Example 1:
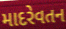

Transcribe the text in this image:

માદરેવતન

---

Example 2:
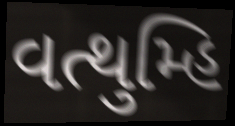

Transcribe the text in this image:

વત્થુમ્હિ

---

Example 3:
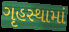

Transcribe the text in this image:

ગૃહસ્થામાં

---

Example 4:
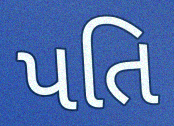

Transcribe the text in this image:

પતિ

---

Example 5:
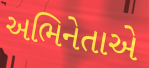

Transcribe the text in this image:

અભિનેતાએ